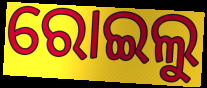
ରୋଇଲୁ